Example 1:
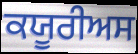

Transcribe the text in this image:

ਕਯੂਰੀਅਸ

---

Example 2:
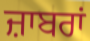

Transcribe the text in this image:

ਜ਼ਾਬਰਾਂ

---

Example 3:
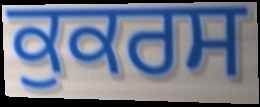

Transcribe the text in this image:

ਕੁਕਰਸ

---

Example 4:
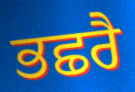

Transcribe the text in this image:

ਭਛਰੈ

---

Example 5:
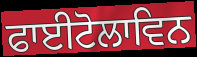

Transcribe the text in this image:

ਫਾਈਟੋਲਾਵਿਨ